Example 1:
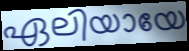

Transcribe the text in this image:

ഏലിയായേ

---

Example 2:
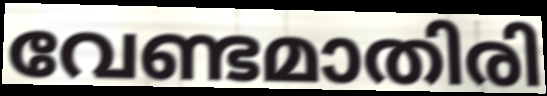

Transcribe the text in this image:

വേണ്ടമാതിരി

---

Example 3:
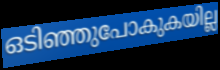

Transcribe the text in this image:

ഒടിഞ്ഞുപോകുകയില്ല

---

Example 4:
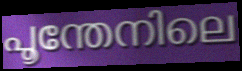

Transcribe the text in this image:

പൂന്തേനിലെ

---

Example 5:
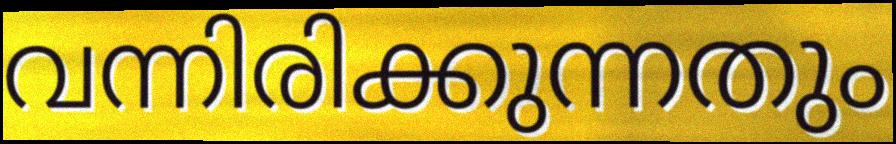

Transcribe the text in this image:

വന്നിരിക്കുന്നതും